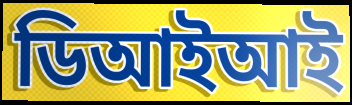
ডিআইআই